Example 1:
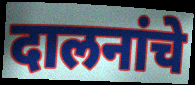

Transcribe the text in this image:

दालनांचे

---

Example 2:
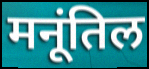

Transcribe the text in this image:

मनूंतिल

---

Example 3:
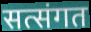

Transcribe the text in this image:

सत्संगत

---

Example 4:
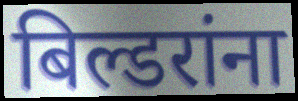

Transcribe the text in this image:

बिल्डरांना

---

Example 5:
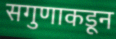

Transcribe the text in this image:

सगुणाकडून